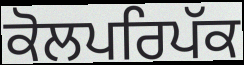
ਕੋਲਪਰਿਪੱਕ